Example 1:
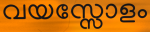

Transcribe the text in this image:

വയസ്സോളം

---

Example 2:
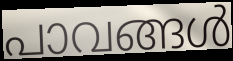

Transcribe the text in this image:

പാവങ്ങൾ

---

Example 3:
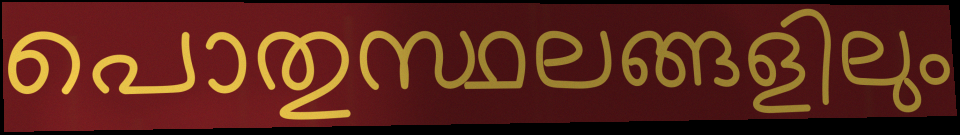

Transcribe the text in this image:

പൊതുസ്ഥലങ്ങളിലും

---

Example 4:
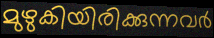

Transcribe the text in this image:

മുഴുകിയിരിക്കുന്നവർ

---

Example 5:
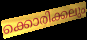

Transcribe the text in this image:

ക്കൊരിക്കലും